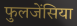
फुलजेंसिया